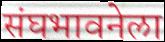
संघभावनेला